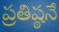
ప్రతిష్ఠనే